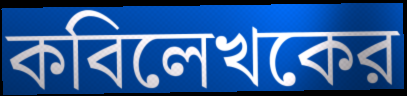
কবিলেখকের